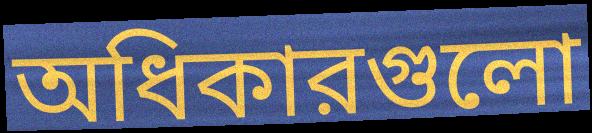
অধিকারগুলো